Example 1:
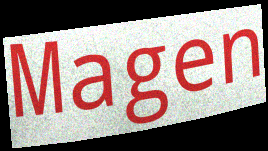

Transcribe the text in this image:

Magen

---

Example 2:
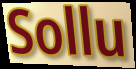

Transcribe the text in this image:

Sollu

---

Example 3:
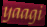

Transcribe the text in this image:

yaagi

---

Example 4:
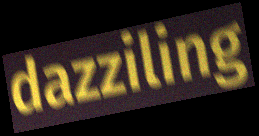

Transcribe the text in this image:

dazziling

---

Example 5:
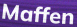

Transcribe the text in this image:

Maffen